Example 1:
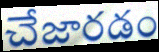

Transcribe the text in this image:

చేజారడం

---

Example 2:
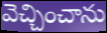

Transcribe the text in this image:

వెచ్చించాను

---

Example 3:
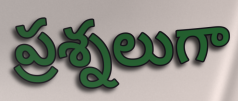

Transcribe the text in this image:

ప్రశ్నలుగా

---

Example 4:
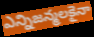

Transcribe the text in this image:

ఎన్నిజన్మలకైనా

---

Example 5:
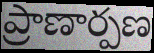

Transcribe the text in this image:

ప్రాణార్పణ